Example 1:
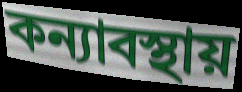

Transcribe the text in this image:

কন্যাবস্থায়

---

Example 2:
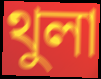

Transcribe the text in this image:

থুলা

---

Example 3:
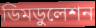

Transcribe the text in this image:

ডিমডুলেশন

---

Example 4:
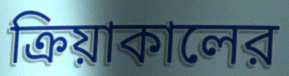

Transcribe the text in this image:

ক্রিয়াকালের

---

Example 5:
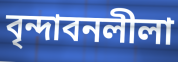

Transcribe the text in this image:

বৃন্দাবনলীলা